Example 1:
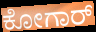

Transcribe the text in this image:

ಕೋಗಾರ್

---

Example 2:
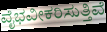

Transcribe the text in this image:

ವೈಭವೀಕರಿಸುತ್ತಿವೆ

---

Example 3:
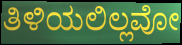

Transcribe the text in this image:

ತಿಳಿಯಲಿಲ್ಲವೋ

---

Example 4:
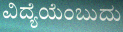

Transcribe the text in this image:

ವಿದ್ಯೆಯೆಂಬುದು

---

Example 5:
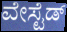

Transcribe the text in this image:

ವೇಸ್ಟೆಡ್